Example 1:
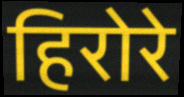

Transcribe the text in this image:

हिरोरे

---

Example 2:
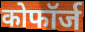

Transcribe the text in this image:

कोफॉर्ज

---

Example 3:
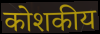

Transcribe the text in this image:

कोशकीय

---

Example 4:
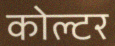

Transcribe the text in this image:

कोल्टर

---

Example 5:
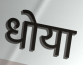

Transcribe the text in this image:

धोया